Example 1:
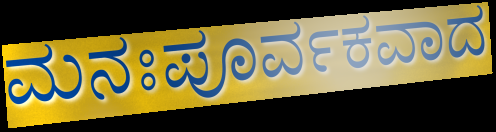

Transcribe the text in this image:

ಮನಃಪೂರ್ವಕವಾದ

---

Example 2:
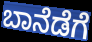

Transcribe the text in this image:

ಬಾನೆಡೆಗೆ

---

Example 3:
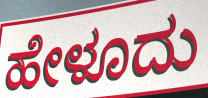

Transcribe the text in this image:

ಹೇಳೂದು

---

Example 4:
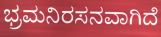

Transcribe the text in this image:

ಭ್ರಮನಿರಸನವಾಗಿದೆ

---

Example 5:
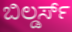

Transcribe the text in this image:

ಬಿಲ್ಡರ್ಸ್